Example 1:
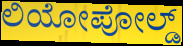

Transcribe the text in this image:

ಲಿಯೋಪೋಲ್ಡ್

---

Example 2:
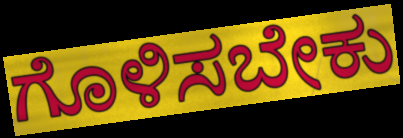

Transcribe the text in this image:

ಗೊಳಿಸಬೇಕು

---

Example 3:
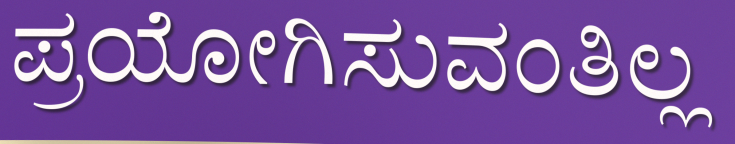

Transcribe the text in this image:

ಪ್ರಯೋಗಿಸುವಂತಿಲ್ಲ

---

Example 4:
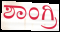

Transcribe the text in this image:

ಶಾಂಗ್ರಿ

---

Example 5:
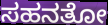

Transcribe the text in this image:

ಸಹನತೋ